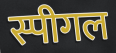
स्पीगल